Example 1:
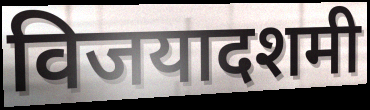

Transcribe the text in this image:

विजयादशमी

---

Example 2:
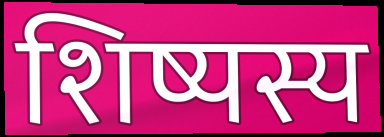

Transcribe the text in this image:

शिष्यस्य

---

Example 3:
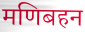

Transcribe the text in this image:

मणिबहन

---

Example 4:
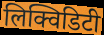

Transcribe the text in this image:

लिक्विडिटी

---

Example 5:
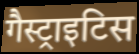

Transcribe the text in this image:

गैस्ट्राइटिस